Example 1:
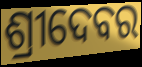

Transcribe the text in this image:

ଶ୍ରୀଦେବର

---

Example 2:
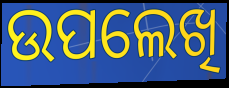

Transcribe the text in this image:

ଉପଲେଖି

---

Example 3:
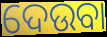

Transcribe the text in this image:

ଦେଉବା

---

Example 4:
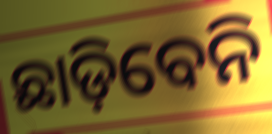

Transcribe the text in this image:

ଛାଡ଼ିବେନି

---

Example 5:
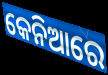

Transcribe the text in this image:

କେନିଆରେ